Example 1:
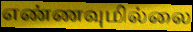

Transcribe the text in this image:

எண்ணவுமில்லை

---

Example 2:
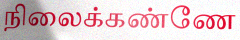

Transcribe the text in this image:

நிலைக்கண்ணே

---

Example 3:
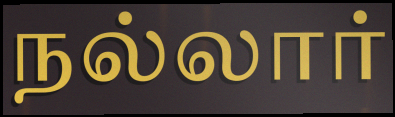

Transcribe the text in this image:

நல்லார்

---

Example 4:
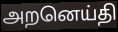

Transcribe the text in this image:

அறனெய்தி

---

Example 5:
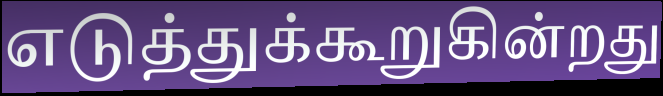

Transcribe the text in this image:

எடுத்துக்கூறுகின்றது